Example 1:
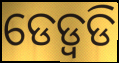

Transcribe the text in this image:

ଡେଡ୍ବଡି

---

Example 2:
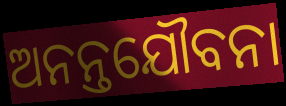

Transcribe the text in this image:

ଅନନ୍ତଯୌବନା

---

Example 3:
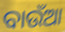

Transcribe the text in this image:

ବାଉଁଆ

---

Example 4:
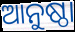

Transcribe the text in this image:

ଆନୁଷ୍ଠା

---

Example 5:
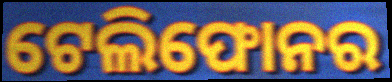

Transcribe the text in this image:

ଟେଲିଫୋନର